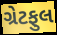
ગ્રેટફુલ